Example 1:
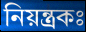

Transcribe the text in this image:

নিয়ন্ত্রকঃ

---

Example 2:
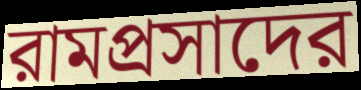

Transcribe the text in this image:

রামপ্রসাদের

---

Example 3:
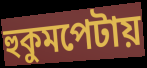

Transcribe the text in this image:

হুকুমপেটায়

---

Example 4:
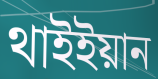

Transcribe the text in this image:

থাইইয়ান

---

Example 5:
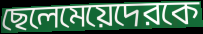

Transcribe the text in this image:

ছেলেমেয়েদেরকে